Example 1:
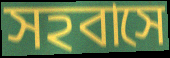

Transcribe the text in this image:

সহবাসে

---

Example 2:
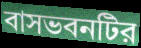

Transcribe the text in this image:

বাসভবনটির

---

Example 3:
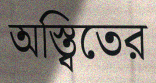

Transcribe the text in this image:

অস্ত্বিতের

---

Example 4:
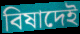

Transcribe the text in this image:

বিষাদেই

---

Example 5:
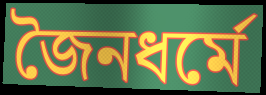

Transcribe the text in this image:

জৈনধর্মে